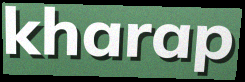
kharap